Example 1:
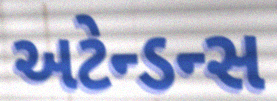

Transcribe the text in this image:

અટેન્ડન્સ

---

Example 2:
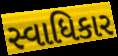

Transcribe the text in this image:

સ્વાધિકાર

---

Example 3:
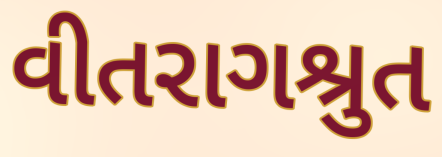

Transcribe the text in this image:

વીતરાગશ્રુત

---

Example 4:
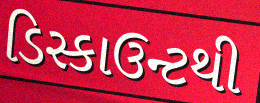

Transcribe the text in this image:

ડિસ્કાઉન્ટથી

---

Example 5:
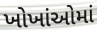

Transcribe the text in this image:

ખોખાંઓમાં